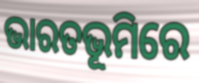
ଭାରତଭୂମିରେ